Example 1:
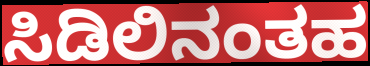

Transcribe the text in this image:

ಸಿಡಿಲಿನಂತಹ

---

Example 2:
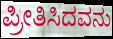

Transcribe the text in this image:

ಪ್ರೀತಿಸಿದವನು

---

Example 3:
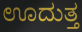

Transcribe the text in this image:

ಊದುತ್ತ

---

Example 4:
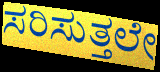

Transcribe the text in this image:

ಸರಿಸುತ್ತಲೇ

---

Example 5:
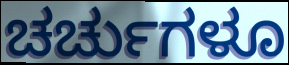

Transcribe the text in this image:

ಚರ್ಚುಗಳೂ